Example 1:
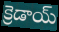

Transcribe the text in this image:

క్రెడాయ్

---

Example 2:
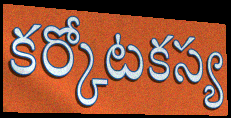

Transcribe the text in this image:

కర్కోటకస్య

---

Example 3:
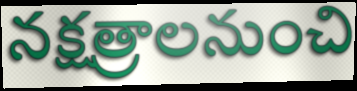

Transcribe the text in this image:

నక్షత్రాలనుంచి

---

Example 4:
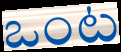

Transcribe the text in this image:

ఒంట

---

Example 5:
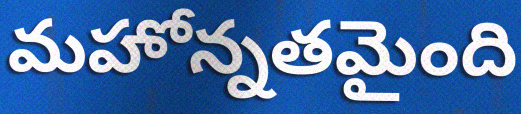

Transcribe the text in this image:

మహోన్నతమైంది